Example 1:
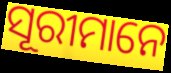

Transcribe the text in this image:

ସୂରୀମାନେ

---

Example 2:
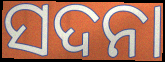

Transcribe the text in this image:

ସଦନା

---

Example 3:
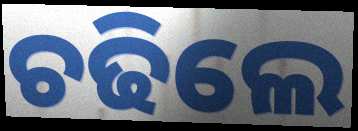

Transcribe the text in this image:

ଚଢିଲେ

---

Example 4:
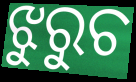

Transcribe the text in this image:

ଝୁରୁଚ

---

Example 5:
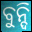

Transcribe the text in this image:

ବୁନ୍ଦି